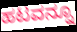
ಹಟವನ್ನೂ